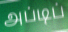
அப்டிப்